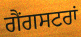
ਗੈਂਗਸਟਰਾਂ